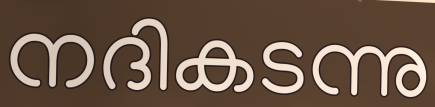
നദികടന്നു